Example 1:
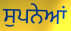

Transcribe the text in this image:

ਸੁਪਨੇਆਂ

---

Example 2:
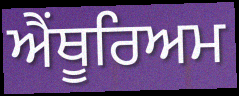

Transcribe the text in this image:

ਐਂਥੂਰਿਅਮ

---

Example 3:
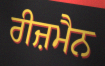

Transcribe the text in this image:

ਰੀਜ਼ਮੈਨ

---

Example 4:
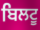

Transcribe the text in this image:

ਬਿਲਟੂ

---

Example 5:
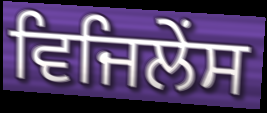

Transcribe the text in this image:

ਵਿਜਿਲੇਂਸ